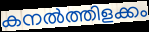
കനൽത്തിളക്കം